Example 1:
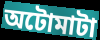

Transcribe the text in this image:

অটোমাটা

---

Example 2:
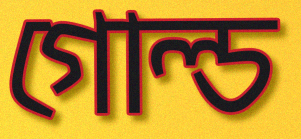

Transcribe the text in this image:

গোল্ড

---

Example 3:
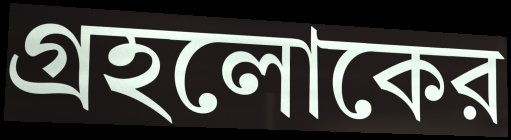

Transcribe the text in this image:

গ্রহলোকের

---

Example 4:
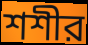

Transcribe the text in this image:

শশীর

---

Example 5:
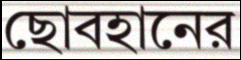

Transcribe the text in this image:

ছোবহানের